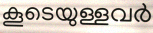
കൂടെയുള്ളവർ